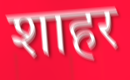
शाहर